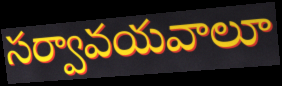
సర్వావయవాలూ